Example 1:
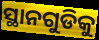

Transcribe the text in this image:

ସ୍ଥାନଗୁଡିକୁ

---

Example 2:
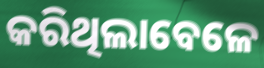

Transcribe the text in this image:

କରିଥିଲାବେଳେ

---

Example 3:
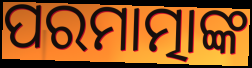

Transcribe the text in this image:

ପରମାତ୍ମାଙ୍କ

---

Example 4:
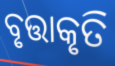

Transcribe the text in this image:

ବୃତ୍ତାକୃତି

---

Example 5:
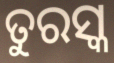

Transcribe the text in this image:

ତୁରସ୍କ